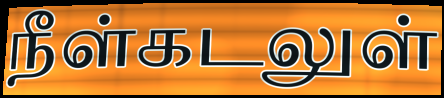
நீள்கடலுள்